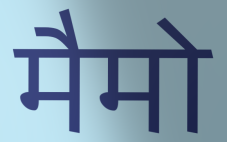
मैमो